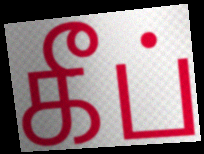
கீப்